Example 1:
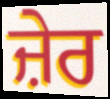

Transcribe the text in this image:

ਜ਼ੇਰ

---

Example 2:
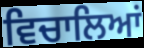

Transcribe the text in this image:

ਵਿਚਾਲਿਆਂ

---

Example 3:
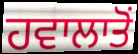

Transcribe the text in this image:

ਹਵਾਲਾਤੋਂ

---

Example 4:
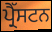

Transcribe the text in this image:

ਪ੍ਰੈੱਸਟਨ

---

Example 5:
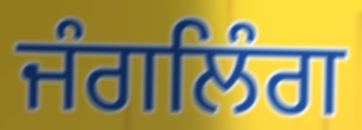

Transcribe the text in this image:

ਜੰਗਲਿੰਗ